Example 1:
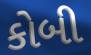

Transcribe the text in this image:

કોબી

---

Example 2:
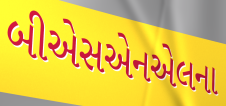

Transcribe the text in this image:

બીએસએનએલના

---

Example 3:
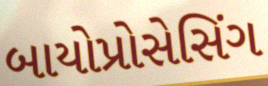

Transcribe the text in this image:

બાયોપ્રોસેસિંગ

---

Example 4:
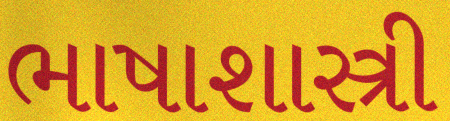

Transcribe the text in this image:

ભાષાશાસ્ત્રી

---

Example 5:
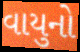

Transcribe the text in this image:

વાયુનો